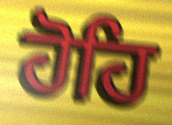
ਹੋਹਿ